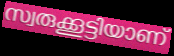
സ്വരുക്കൂട്ടിയാണ്